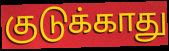
குடுக்காது